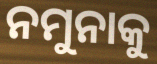
ନମୁନାକୁ